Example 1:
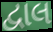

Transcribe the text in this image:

દ્વાલ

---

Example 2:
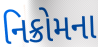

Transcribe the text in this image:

નિક્રોમના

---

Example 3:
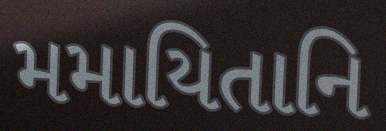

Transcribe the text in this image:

મમાયિતાનિ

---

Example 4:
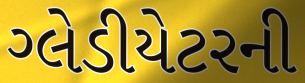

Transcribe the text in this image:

ગ્લેડીયેટરની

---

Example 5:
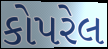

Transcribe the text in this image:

કોપરેલ